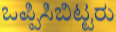
ಒಪ್ಪಿಸಿಬಿಟ್ಟರು